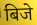
बिजे